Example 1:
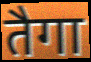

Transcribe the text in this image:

तैगा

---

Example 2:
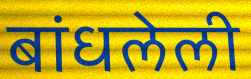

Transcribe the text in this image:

बांधलेली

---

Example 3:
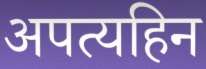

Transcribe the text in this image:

अपत्यहिन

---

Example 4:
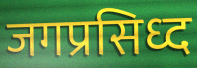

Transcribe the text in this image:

जगप्रसिध्द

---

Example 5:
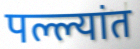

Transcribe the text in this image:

पल्ल्यांत